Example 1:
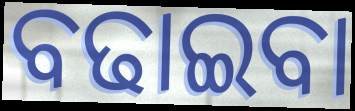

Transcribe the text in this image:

ବଢାଇବା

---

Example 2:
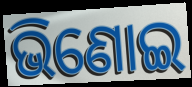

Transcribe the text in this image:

ଭିଣୋଇ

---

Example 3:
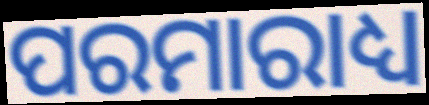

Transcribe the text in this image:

ପରମାରାଧ୍ୟ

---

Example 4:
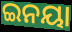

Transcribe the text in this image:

ଇନୟା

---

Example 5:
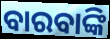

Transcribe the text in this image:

ବାରବାଙ୍କି